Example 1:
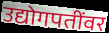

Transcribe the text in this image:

उद्योगपतींवर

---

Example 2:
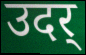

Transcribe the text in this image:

उदर्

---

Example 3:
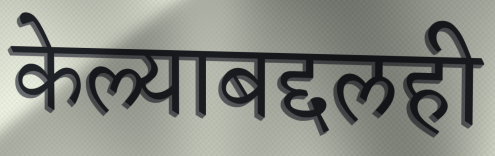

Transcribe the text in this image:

केल्याबद्दलही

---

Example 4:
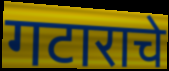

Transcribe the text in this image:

गटाराचे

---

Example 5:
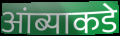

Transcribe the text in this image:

आंब्याकडे